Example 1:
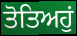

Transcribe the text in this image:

ਤੋਤਿਅਹੁਂ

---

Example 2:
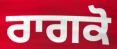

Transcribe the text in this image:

ਰਾਗਕੋ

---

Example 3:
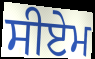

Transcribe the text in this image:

ਸੀਏਮ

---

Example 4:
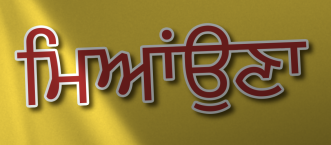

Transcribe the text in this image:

ਮਿਆਂਉਣਾ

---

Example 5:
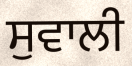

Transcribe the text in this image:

ਸੁਵਾਲੀ